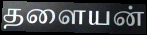
தளையன்